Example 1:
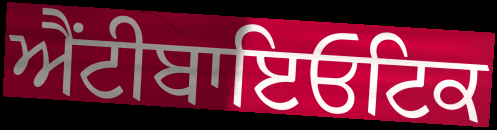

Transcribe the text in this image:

ਐਂਟੀਬਾਇਓਟਿਕ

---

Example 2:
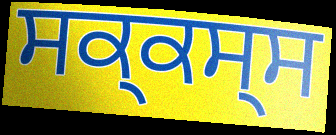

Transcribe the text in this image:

ਸਕ੍ਕਸ੍ਸ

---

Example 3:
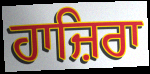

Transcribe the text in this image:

ਹਾਜ਼ਿਰਾ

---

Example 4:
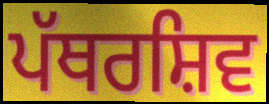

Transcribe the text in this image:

ਪੱਥਰਸ਼ਿਵ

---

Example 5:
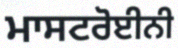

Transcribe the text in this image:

ਮਾਸਟਰੋਈਨੀ